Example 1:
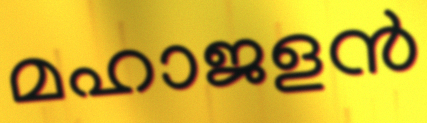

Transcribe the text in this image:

മഹാജളൻ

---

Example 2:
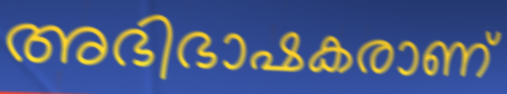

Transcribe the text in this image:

അഭിഭാഷകരാണ്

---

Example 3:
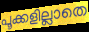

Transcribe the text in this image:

പൂക്കളില്ലാതെ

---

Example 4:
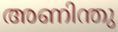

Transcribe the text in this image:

അണിന്തു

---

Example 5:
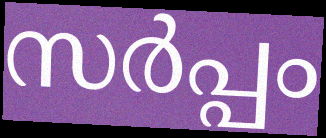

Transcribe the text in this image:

സർപ്പം